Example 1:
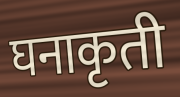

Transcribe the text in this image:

घनाकृती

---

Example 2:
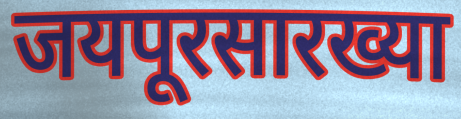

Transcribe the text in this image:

जयपूरसारख्या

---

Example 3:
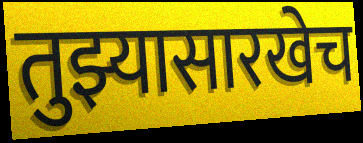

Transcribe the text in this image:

तुझ्यासारखेच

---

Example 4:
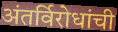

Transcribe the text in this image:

अंतर्विरोधांची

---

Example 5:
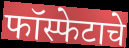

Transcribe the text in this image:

फॉस्फेटाचे